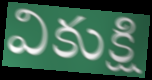
వికుక్షి